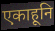
एकाहूनि